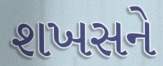
શખસને